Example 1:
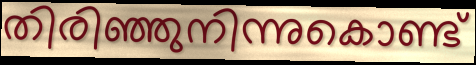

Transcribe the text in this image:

തിരിഞ്ഞുനിന്നുകൊണ്ട്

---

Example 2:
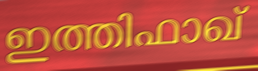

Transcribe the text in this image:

ഇത്തിഫാഖ്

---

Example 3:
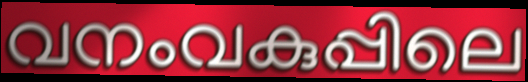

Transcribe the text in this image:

വനംവകുപ്പിലെ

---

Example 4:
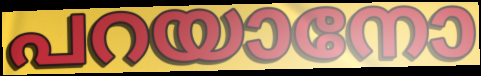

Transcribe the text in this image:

പറയാനോ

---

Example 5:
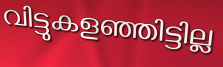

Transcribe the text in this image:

വിട്ടുകളഞ്ഞിട്ടില്ല